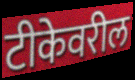
टीकेवरील